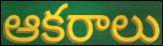
ఆకరాలు